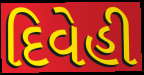
દિવેહી